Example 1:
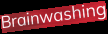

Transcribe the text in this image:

Brainwashing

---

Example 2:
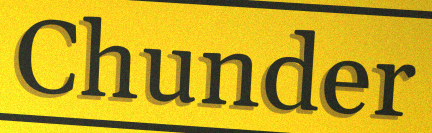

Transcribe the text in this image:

Chunder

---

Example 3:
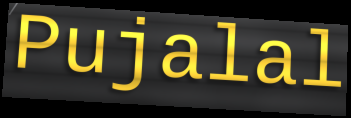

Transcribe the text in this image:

Pujalal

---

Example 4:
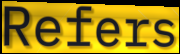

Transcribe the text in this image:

Refers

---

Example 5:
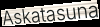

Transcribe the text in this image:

Askatasuna